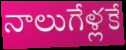
నాలుగేళ్లకే